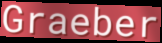
Graeber